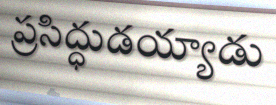
ప్రసిద్ధుడయ్యాడు